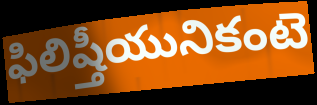
ఫిలిష్తీయునికంటె